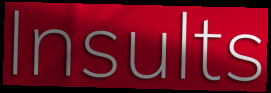
Insults